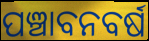
ପଞ୍ଚାବନବର୍ଷ